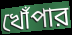
খোঁপার